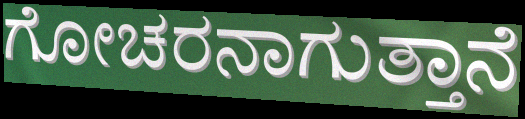
ಗೋಚರನಾಗುತ್ತಾನೆ